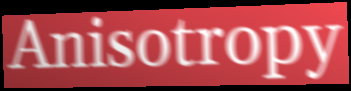
Anisotropy